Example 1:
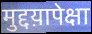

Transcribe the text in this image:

मुद्दय़ापेक्षा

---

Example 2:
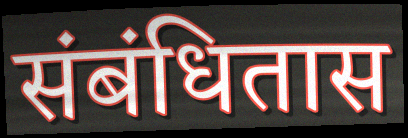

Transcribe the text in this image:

संबंधितास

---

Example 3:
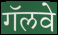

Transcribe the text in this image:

गॅलवे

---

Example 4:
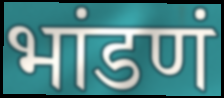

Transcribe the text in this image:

भांडणं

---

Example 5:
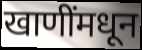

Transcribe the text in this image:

खाणींमधून